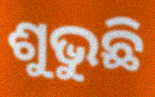
ଶୁଭୁଛି